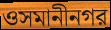
ওসমানীনগর